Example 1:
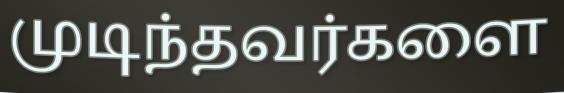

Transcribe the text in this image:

முடிந்தவர்களை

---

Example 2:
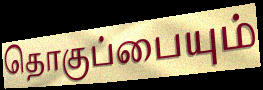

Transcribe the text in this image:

தொகுப்பையும்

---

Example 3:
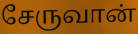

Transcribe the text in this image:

சேருவான்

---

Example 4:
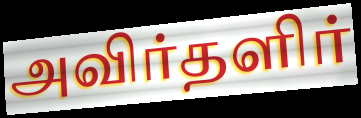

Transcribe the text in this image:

அவிர்தளிர்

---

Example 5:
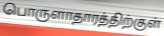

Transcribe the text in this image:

பொருளாதாரத்திற்குள்